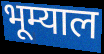
भूम्याल